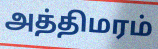
அத்திமரம்